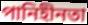
পানিহীনতা